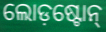
ଲୋଡ଼ଷ୍ଟୋନ୍